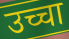
उच्चा